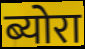
ब्योरा